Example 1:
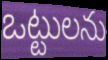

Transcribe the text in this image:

ఒట్టులను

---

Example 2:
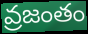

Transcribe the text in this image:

వ్రజంతం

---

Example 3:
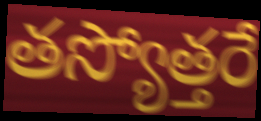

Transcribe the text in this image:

తస్యోత్తరే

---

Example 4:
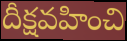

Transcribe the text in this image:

దీక్షవహించి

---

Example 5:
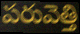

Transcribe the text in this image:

పరువెత్తి